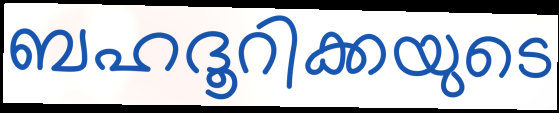
ബഹദൂറിക്കയുടെ